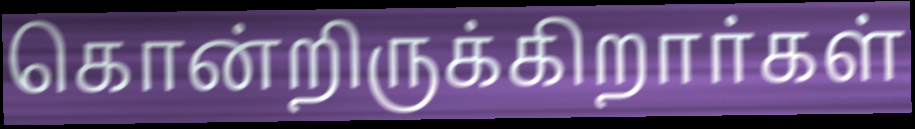
கொன்றிருக்கிறார்கள்